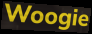
Woogie